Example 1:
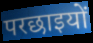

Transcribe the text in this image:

परछाइयों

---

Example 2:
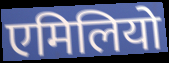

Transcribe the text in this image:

एमिलियो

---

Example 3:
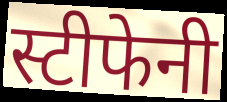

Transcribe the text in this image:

स्टीफेनी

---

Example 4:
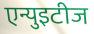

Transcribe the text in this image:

एन्युइटीज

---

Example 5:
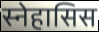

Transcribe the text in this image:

स्नेहासिस